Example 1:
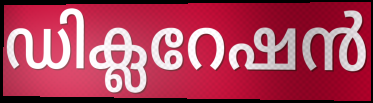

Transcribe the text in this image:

ഡിക്ലറേഷൻ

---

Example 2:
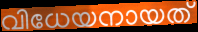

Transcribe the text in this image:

വിധേയനായത്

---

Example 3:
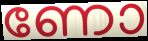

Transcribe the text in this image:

ണോ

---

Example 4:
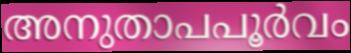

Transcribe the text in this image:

അനുതാപപൂർവം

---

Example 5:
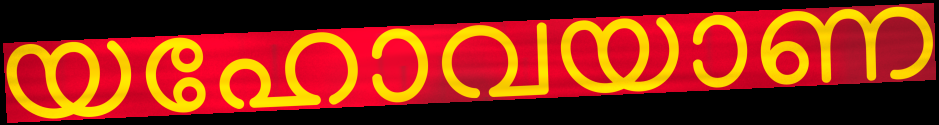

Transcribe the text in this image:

യഹോവയാണ